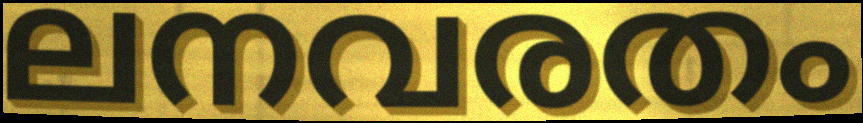
ലനവരതം